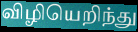
விழியெறிந்து